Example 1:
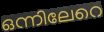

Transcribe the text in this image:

ഒന്നിലേറെ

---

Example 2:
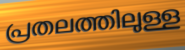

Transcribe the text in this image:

പ്രതലത്തിലുള്ള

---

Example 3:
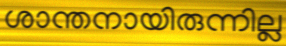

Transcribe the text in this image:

ശാന്തനായിരുന്നില്ല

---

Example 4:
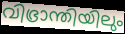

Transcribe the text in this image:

വിഭ്രാന്തിയിലും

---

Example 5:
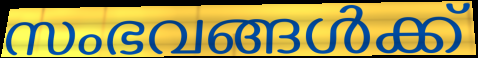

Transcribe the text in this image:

സംഭവങ്ങൾക്ക്